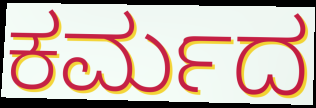
ಕರ್ಮದ